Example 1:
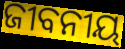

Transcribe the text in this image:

ଜୀବନୀୟ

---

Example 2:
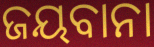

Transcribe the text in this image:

ଜୟବାନା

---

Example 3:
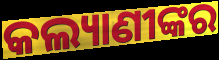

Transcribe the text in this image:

କଲ୍ୟାଣୀଙ୍କର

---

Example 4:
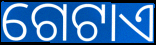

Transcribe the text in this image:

ଗେଟାଏ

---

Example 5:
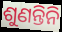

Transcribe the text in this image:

ଶୁଣନ୍ତିନି